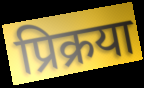
प्रिक्रया